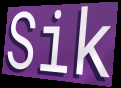
Sik